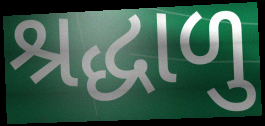
શ્રદ્ધાળુ